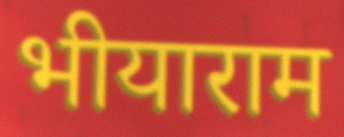
भीयाराम